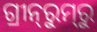
ଗ୍ରୀନ୍‌ରୁମ୍‌ରୁ